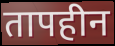
तापहीन